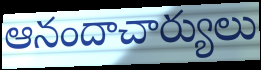
ఆనందాచార్యులు